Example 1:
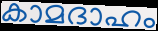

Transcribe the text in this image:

കാമദാഹം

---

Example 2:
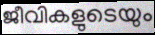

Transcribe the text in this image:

ജീവികളുടെയും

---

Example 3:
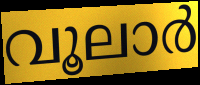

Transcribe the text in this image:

വൂലാർ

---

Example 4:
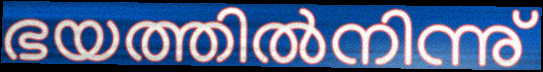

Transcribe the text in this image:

ഭയത്തിൽനിന്നു്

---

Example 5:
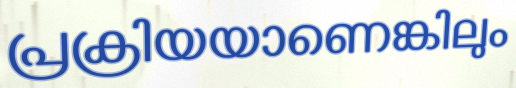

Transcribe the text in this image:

പ്രക്രിയയാണെങ്കിലും